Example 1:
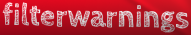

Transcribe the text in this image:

filterwarnings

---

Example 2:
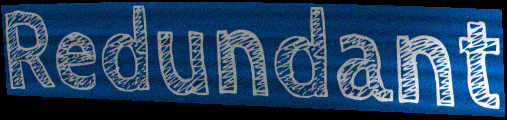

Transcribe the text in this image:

Redundant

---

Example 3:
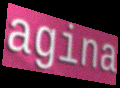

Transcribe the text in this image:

agina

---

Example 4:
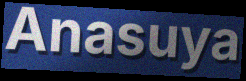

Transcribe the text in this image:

Anasuya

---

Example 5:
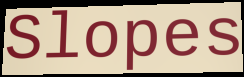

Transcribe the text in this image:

Slopes